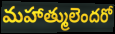
మహాత్ములెందరో